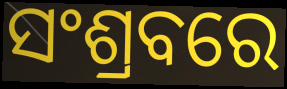
ସଂଶ୍ରବରେ